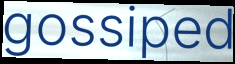
gossiped